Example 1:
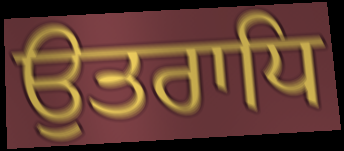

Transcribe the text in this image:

ਉਤਰਾਧਿ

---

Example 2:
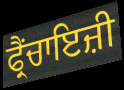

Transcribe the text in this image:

ਫ੍ਰੈਂਚਾਇਜ਼ੀ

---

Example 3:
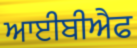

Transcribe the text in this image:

ਆਈਬੀਐਫ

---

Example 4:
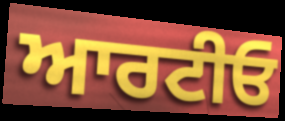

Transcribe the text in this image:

ਆਰਟੀਓ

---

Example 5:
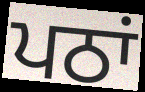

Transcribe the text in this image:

ਪਠਾਂ